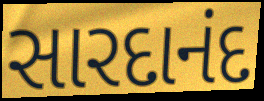
સારદાનંદ